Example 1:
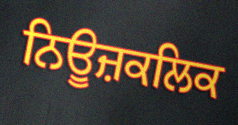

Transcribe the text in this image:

ਨਿਊਜ਼ਕਲਿਕ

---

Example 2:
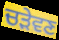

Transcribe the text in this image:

ਚੜੇਵਣ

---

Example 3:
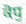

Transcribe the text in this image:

ਕੋਧੁ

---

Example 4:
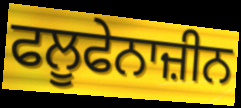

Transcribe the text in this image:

ਫਲੂਫੇਨਾਜ਼ੀਨ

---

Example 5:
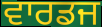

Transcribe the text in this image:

ਵਾਰਡਜ